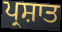
ਪ੍ਰਸ਼ਾਤ